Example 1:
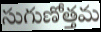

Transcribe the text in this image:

సుగుణోత్తమ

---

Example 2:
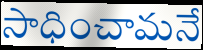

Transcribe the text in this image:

సాధించామనే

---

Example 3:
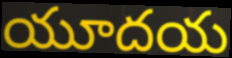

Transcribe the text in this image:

యూదయ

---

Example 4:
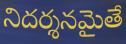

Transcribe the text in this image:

నిదర్శనమైతే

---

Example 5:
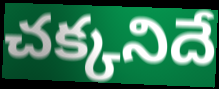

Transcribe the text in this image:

చక్కనిదే